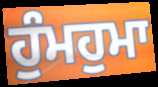
ਹੁੰਮਹੁਮਾ